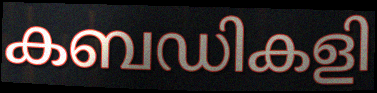
കബഡികളി